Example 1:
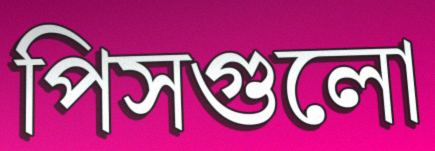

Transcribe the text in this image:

পিসগুলো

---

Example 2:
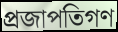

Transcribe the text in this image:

প্রজাপতিগণ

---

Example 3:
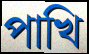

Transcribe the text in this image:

পাখি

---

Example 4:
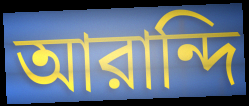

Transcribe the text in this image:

আরান্দি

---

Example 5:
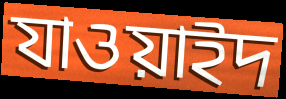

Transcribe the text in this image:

যাওয়াইদ